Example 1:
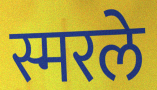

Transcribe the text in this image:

स्मरले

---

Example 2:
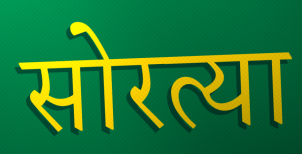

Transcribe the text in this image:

सोरत्या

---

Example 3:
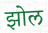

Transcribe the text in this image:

झोल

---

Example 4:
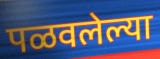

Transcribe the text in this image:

पळवलेल्या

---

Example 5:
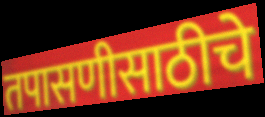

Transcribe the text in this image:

तपासणीसाठीचे